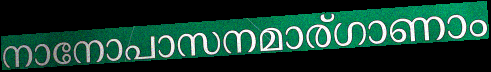
നാനോപാസനമാര്ഗാണാം